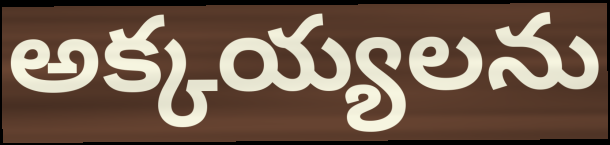
అక్కయ్యలను